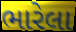
ભારેલા